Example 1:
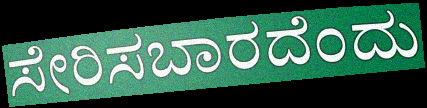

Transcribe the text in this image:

ಸೇರಿಸಬಾರದೆಂದು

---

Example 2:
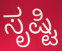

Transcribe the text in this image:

ಸೃಷ್ಟಿ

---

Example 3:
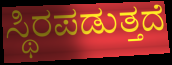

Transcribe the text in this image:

ಸ್ಥಿರಪಡುತ್ತದೆ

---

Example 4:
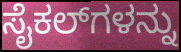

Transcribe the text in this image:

ಸೈಕಲ್‌ಗಳನ್ನು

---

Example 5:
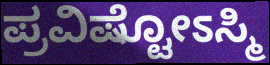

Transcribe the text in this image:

ಪ್ರವಿಷ್ಟೋಽಸ್ಮಿ